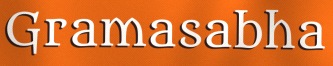
Gramasabha